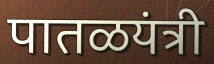
पातळयंत्री